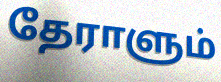
தேராளும்